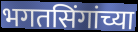
भगतसिंगांच्या